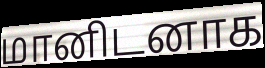
மானிடனாக